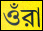
ওঁরা